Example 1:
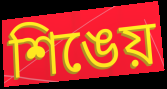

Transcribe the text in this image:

শিঙেয়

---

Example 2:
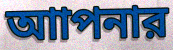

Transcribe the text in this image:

আাপনার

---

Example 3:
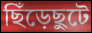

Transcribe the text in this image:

ছিঁড়েছুটে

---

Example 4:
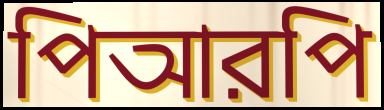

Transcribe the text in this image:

পিআরপি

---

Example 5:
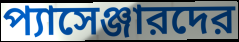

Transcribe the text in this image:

প্যাসেঞ্জারদের